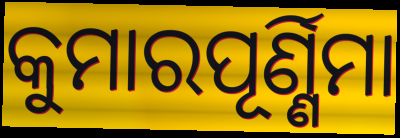
କୁମାରପୂର୍ଣ୍ଣିମା